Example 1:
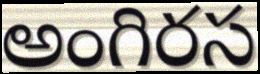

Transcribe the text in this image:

అంగిరస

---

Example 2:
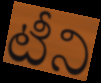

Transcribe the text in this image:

టీని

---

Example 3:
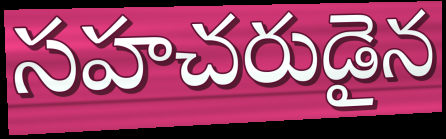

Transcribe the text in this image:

సహచరుడైన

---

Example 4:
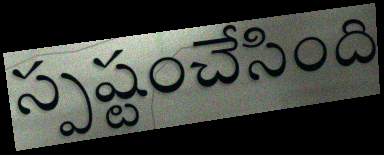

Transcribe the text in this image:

స్పష్టంచేసింది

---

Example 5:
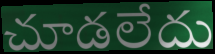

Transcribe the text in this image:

చూడలేదు